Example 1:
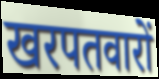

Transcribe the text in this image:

खरपतवारों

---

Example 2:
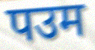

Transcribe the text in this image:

पउम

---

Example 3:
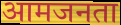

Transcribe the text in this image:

आमजनता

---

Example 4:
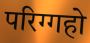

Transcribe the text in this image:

परिग्गहो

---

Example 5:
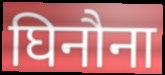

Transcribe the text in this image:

घिनौना